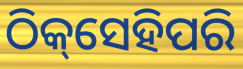
ଠିକ୍‌ସେହିପରି